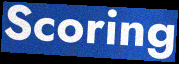
Scoring